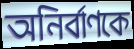
অনির্বাণকে